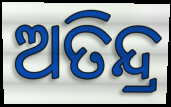
ଅତିନ୍ଦ୍ର